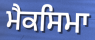
ਮੈਕਸਿਮਾ